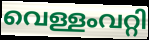
വെള്ളംവറ്റി